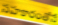
సహకారంతోనే